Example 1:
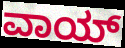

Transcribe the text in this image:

ವಾಯ್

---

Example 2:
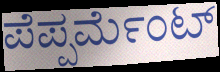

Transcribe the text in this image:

ಪೆಪ್ಪರ್ಮೆಂಟ್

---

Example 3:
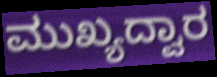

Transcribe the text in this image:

ಮುಖ್ಯದ್ವಾರ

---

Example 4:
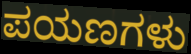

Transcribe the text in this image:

ಪಯಣಗಳು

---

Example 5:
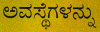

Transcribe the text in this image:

ಅವಸ್ಥೆಗಳನ್ನು